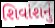
શિવાંશનું